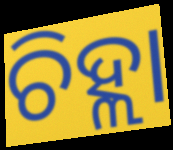
ଚିହ୍ଲା